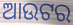
ଆଉଟର